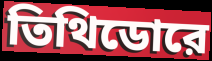
তিথিডোরে